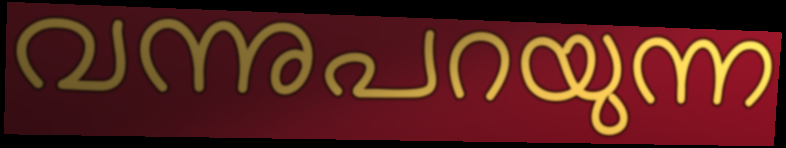
വന്നുപറയുന്ന